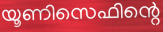
യൂണിസെഫിന്റെ